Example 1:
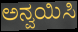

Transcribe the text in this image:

ಅನ್ವಯಿಸಿ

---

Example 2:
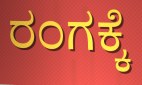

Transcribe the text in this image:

ರಂಗಕ್ಕೆ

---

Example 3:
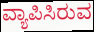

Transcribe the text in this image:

ವ್ಯಾಪಿಸಿರುವ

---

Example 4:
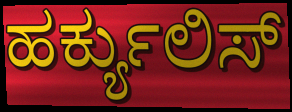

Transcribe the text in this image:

ಹರ್ಕ್ಯುಲಿಸ್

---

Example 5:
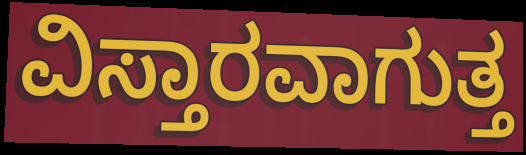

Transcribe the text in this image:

ವಿಸ್ತಾರವಾಗುತ್ತ